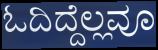
ಓದಿದ್ದೆಲ್ಲವೂ